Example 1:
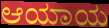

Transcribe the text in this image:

ಆಯಾಯ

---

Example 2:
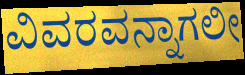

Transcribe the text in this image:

ವಿವರವನ್ನಾಗಲೀ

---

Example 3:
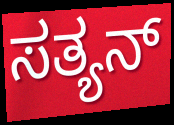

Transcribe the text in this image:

ಸತ್ಯನ್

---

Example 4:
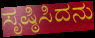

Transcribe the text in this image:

ಸೃಷ್ಠಿಸಿದನು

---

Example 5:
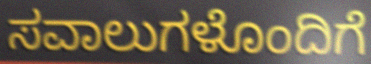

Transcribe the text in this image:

ಸವಾಲುಗಳೊಂದಿಗೆ